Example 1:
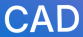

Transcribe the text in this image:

CAD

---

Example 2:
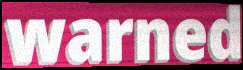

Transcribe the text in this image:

warned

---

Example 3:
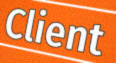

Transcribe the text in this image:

Client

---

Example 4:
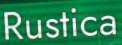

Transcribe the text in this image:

Rustica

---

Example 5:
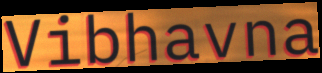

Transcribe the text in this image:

Vibhavna